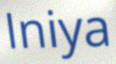
Iniya